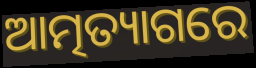
ଆତ୍ମତ୍ୟାଗରେ